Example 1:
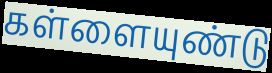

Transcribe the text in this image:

கள்ளையுண்டு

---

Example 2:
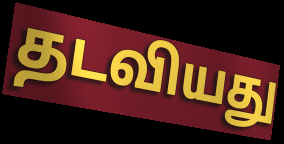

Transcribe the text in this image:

தடவியது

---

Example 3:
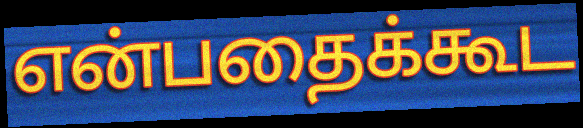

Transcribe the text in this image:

என்பதைக்கூட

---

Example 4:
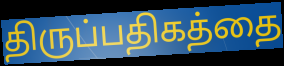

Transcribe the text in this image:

திருப்பதிகத்தை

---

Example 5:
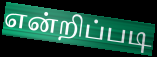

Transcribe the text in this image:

என்றிப்படி